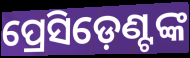
ପ୍ରେସିଡ଼େଣ୍ଟଙ୍କ